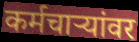
कर्मचाऱ्यांवर